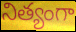
నిత్యంగా